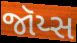
જૉય્સ